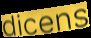
dicens